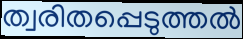
ത്വരിതപ്പെടുത്തൽ